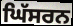
ਘਿੱਸਰਨ